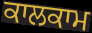
ਕਾਲਕਾਮ